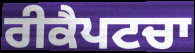
ਰੀਕੈਪਟਚਾ